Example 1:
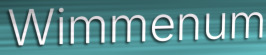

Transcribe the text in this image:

Wimmenum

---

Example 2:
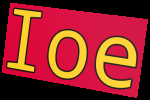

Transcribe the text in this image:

Ioe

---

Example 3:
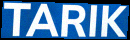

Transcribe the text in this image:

TARIK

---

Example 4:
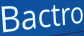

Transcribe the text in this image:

Bactro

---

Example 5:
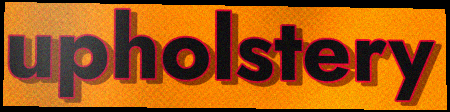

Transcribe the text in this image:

upholstery